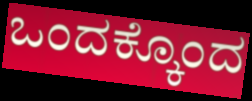
ಒಂದಕ್ಕೊಂದ